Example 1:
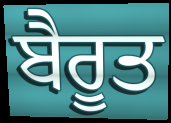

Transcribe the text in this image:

ਬੈਰੂਤ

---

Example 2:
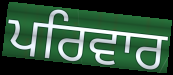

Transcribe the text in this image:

ਪਰਿਵਾਰ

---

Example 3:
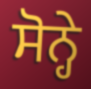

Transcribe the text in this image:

ਸੋਨ੍ਹੇ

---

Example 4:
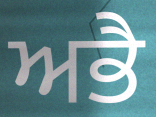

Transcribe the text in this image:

ਅਭੈ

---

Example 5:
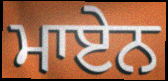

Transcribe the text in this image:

ਮਾਏਨ